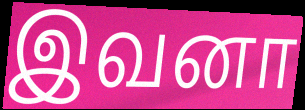
இவனா